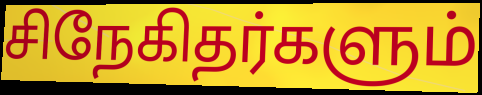
சிநேகிதர்களும்